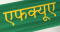
एफक्यूए